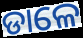
ଡାଳେ